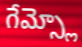
గేమ్స్లో